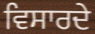
ਵਿਸਾਰਦੇ